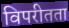
विपरीतता